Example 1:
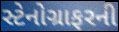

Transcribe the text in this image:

સ્ટેનોગ્રાફરની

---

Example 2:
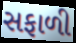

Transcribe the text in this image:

સફાળી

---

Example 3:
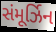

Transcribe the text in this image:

સંમૂર્ઝિન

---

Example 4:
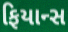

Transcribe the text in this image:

ફિયાન્સ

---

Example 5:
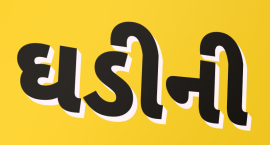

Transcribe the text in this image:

ઘડીની